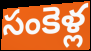
సంకెళ్ల